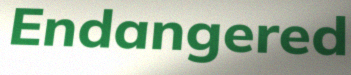
Endangered